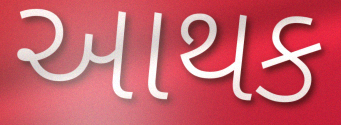
આથક